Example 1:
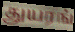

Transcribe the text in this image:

துயரங்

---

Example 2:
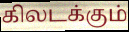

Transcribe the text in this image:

கிலடக்கும்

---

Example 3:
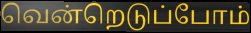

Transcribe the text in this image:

வென்றெடுப்போம்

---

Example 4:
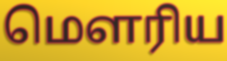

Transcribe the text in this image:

மெளரிய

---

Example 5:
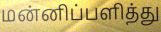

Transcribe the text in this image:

மன்னிப்பளித்து